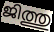
ജിത്തു